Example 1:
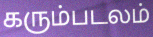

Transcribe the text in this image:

கரும்படலம்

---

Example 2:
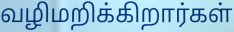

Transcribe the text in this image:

வழிமறிக்கிறார்கள்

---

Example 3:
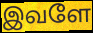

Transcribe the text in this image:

இவளே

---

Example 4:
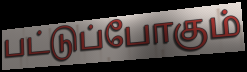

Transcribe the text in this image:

பட்டுப்போகும்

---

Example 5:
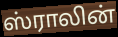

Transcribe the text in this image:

ஸ்ராலின்